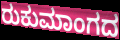
ರುಕುಮಾಂಗದ